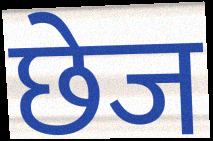
छेज